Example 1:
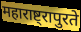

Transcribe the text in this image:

महाराष्ट्रापुरते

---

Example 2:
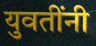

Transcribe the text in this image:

युवतींनी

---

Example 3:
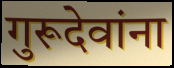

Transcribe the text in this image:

गुरूदेवांना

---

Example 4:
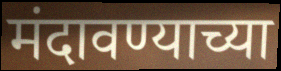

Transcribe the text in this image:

मंदावण्याच्या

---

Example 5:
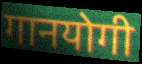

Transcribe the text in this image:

गानयोगी